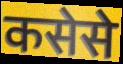
कसेसे